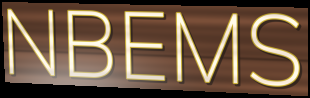
NBEMS